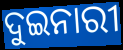
ଦୁଇନାରୀ